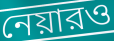
নেয়ারও